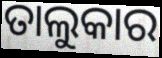
ତାଲୁକାର